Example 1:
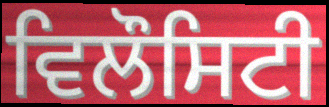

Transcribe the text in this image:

ਵਿਲੌਸਿਟੀ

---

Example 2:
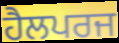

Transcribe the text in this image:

ਹੈਲਪਰਜ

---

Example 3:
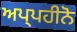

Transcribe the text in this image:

ਅਪ੍ਪਹੀਨੋ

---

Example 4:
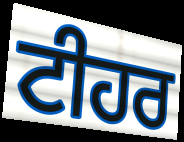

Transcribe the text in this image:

ਟੀਹਰ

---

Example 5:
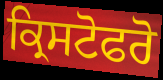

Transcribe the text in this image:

ਕ੍ਰਿਸਟੋਫਰੋ